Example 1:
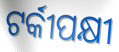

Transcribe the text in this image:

ଟର୍କୀପକ୍ଷୀ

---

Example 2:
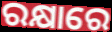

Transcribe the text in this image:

ରକ୍ଷାରେ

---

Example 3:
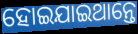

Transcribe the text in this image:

ହୋଇଯାଇଥାନ୍ତେ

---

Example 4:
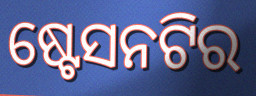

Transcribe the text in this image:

ଷ୍ଟେସନଟିର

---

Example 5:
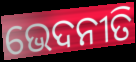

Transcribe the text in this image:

ଭେଦନୀତି